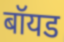
बॉयड